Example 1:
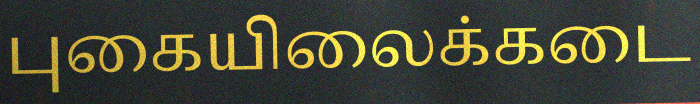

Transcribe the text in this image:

புகையிலைக்கடை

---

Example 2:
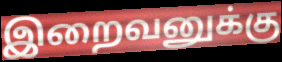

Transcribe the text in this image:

இறைவனுக்கு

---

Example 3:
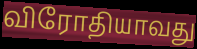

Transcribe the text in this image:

விரோதியாவது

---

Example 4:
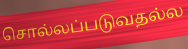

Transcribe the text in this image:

சொல்லப்படுவதல்ல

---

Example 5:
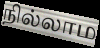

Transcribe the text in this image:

நில்லாம